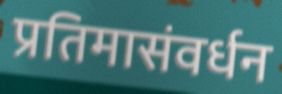
प्रतिमासंवर्धन